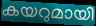
കയറുമായി